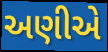
અણીએ